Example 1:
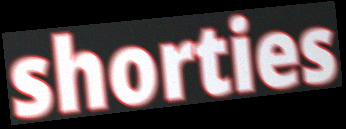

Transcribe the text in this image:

shorties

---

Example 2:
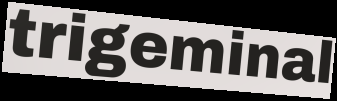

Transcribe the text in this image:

trigeminal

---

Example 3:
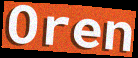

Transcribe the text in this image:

Oren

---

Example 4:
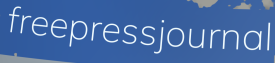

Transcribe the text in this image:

freepressjournal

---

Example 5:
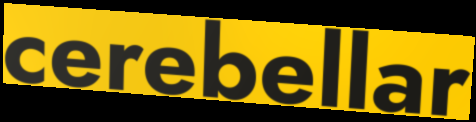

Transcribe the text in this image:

cerebellar